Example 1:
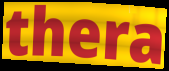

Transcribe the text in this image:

thera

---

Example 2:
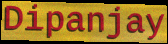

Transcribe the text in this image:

Dipanjay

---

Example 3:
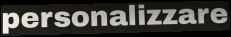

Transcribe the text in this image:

personalizzare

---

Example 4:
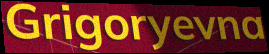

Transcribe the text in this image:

Grigoryevna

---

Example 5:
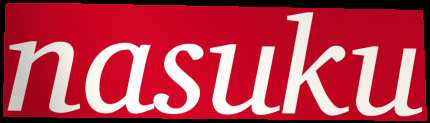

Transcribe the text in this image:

nasuku